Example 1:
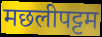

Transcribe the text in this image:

मछलीपट्टम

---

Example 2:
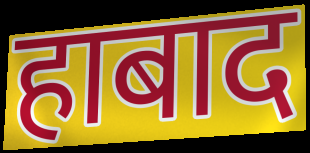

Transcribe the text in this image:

हाबाद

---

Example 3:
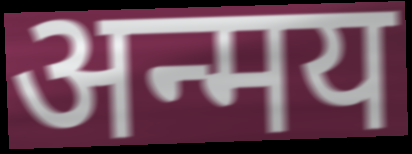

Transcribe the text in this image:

अन्मय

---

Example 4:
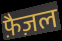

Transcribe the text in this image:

फ़ैज़ल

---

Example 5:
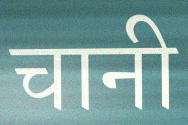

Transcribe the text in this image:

चानी